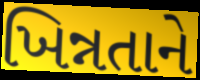
ખિન્નતાને